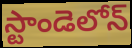
స్టాండెలోన్